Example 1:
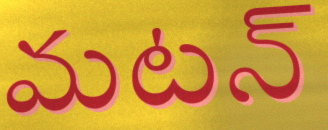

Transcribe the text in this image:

మటన్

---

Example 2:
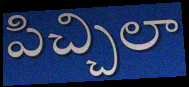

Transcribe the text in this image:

పిచ్చిలా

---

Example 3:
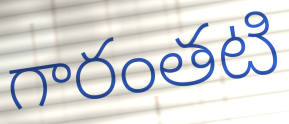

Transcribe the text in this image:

గారంతటి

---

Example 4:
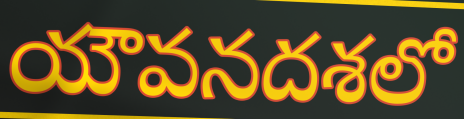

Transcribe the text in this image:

యౌవనదశలో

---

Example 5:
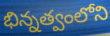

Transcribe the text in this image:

భిన్నత్వంలోని